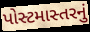
પોસ્ટમાસ્તરનું